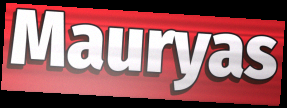
Mauryas